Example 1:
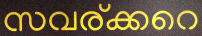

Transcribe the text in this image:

സവര്ക്കറെ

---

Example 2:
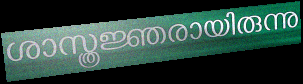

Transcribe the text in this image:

ശാസ്ത്രജ്ഞരായിരുന്നു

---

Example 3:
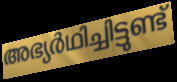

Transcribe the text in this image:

അഭ്യർഥിച്ചിട്ടുണ്ട്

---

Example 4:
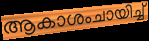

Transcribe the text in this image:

ആകാശംചായിച്ച്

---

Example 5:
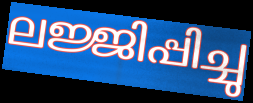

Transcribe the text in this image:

ലജ്ജിപ്പിച്ചു